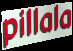
pillala